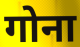
गोना